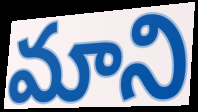
మాని